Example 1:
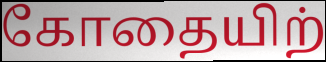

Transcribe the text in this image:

கோதையிற்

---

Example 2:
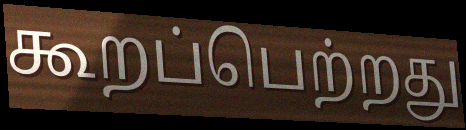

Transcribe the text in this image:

கூறப்பெற்றது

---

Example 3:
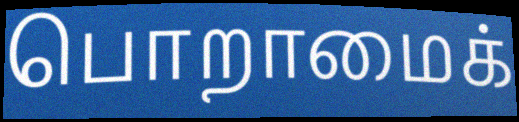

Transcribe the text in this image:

பொறாமைக்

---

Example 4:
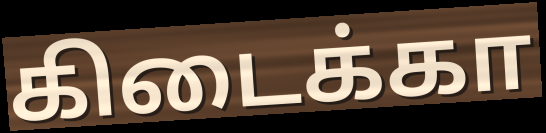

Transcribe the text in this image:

கிடைக்கா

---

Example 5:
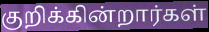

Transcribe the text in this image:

குறிக்கின்றார்கள்